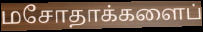
மசோதாக்களைப்